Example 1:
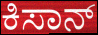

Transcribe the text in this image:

ಕಿಸಾನ್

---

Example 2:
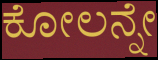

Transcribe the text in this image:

ಕೋಲನ್ನೇ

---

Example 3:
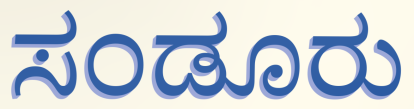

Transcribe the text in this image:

ಸಂಡೂರು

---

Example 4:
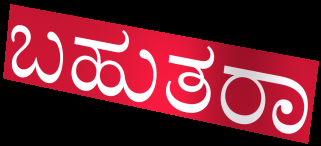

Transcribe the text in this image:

ಬಹುತರಾ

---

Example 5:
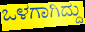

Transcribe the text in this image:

ಒಳಗಾಗಿದ್ದು